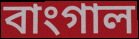
বাংগাল